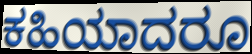
ಕಹಿಯಾದರೂ